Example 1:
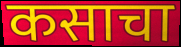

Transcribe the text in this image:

कसाचा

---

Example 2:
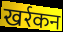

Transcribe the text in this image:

खर्रकन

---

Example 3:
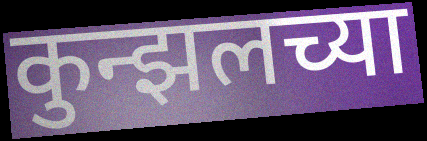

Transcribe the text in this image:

कुन्झलच्या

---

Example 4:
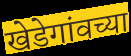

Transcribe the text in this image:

खेडेगांवच्या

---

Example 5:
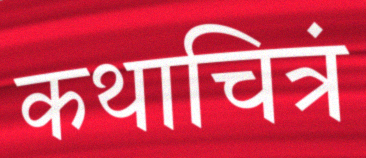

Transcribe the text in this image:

कथाचित्रं